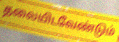
தலையிடவேண்டும்